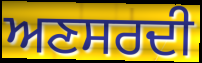
ਅਣਸਰਦੀ